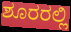
ಶೂರರಲ್ಲಿ